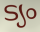
ട്യം